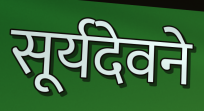
सूर्यदेवने